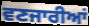
ਵਣਜਾਰੀਆਂ